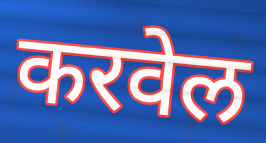
करवेल